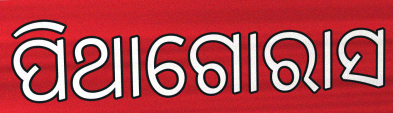
ପିଥାଗୋରାସ